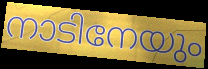
നാടിനേയും